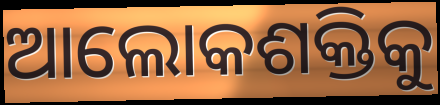
ଆଲୋକଶକ୍ତିକୁ